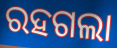
ରହଗଲା